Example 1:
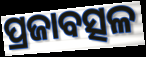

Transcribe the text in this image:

ପ୍ରଜାବତ୍ସଳ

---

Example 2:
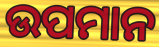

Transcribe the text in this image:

ଉପମାନ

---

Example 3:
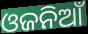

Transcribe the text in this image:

ଓଜନିଆଁ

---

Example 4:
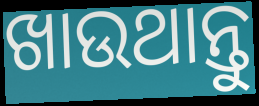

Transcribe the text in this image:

ଖାଉଥାନ୍ତୁ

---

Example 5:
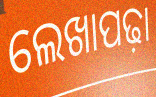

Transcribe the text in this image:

ଲେଖାପଢ଼ା